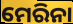
ମେରିନା